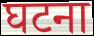
घटना